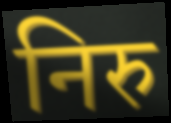
निरु